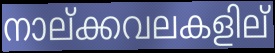
നാല്ക്കവലകളില്